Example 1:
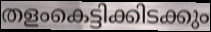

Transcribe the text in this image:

തളംകെട്ടിക്കിടക്കും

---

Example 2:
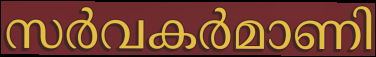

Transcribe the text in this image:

സർവകർമാണി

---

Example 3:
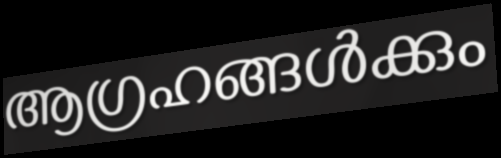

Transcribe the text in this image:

ആഗ്രഹങ്ങൾക്കും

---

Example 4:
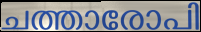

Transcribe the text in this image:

ചത്താരോപി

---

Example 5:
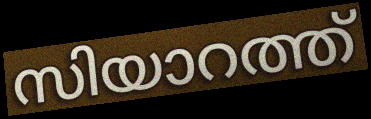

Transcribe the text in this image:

സിയാറത്ത്